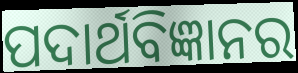
ପଦାର୍ଥବିଜ୍ଞାନର